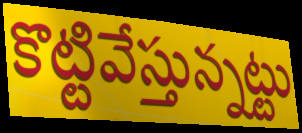
కొట్టివేస్తున్నట్టు